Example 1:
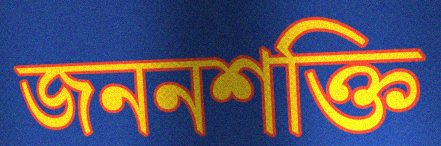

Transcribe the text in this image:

জননশক্তি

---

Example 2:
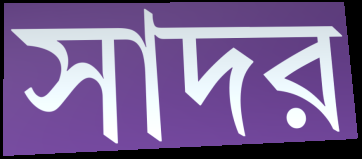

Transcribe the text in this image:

সাদর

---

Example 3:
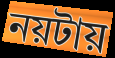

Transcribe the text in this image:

নয়টায়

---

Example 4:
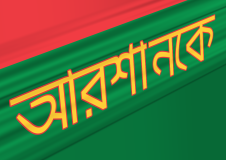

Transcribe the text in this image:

আরশানকে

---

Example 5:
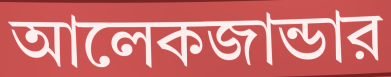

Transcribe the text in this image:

আলেকজান্ডার